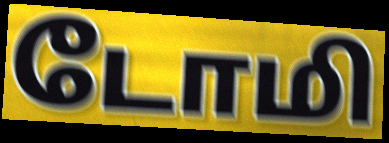
டோமி